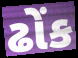
ઢોંક